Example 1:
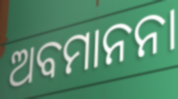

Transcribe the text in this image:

ଅବମାନନା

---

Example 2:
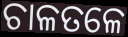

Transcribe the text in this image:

ଚାଳତଳେ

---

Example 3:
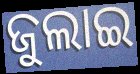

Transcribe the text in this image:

ଜୁଲାଇ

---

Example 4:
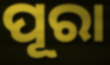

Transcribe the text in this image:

ପୂରା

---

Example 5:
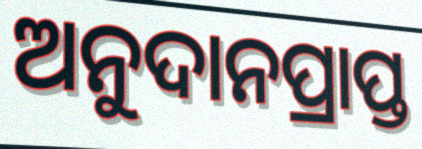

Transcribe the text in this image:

ଅନୁଦାନପ୍ରାପ୍ତ